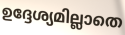
ഉദ്ദേശ്യമില്ലാതെ